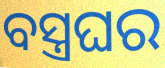
ବସ୍ତ୍ରଘର